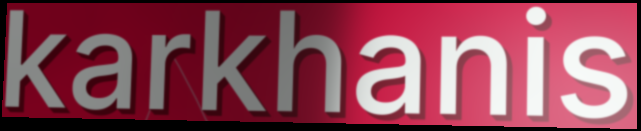
karkhanis